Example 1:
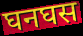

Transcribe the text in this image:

घनघस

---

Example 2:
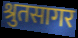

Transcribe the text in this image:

श्रुतसागर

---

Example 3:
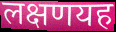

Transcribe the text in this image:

लक्षणयह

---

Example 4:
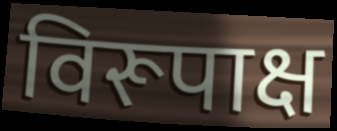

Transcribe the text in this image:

विरूपाक्ष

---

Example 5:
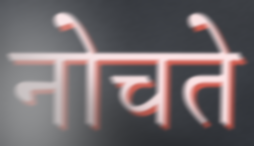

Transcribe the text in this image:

नोचते